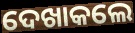
ଦେଖାକଲେ